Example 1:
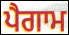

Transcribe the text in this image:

ਪੈਗਾਮ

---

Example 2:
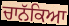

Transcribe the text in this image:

ਚਾਨੱਕਿਆ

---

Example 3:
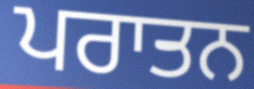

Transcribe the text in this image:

ਪਰਾਤਨ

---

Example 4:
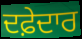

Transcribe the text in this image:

ਦਫ਼ੇਦਾਰ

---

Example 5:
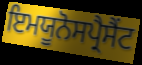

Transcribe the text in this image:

ਇਮਯੂਨੋਸਪ੍ਰੈਸੈਂਟ